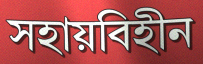
সহায়বিহীন